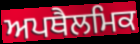
ਅਪਥੈਲਮਿਕ